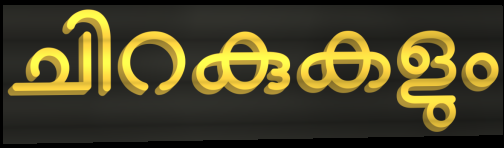
ചിറകുകളും